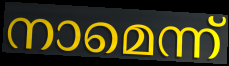
നാമെന്ന്